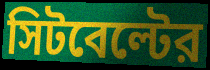
সিটবেল্টের